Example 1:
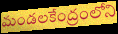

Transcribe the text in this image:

మండలకేంద్రంలోని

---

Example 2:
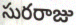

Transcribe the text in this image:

సురరాజు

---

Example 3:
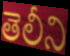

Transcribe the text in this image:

తెలీని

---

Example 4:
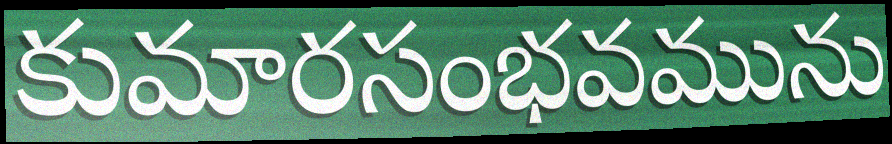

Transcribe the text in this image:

కుమారసంభవమును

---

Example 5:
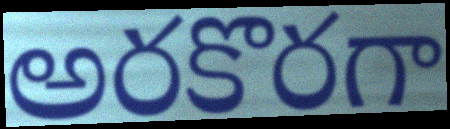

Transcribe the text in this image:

అరకొరగా